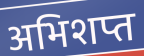
अभिशप्त